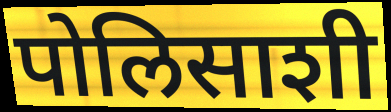
पोलिसाशी